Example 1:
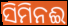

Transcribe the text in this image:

ସିମିନଈ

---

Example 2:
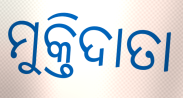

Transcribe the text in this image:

ମୁକ୍ତିଦାତା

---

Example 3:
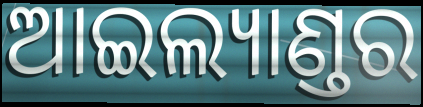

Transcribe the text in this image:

ଆଇଲ୍ୟାଣ୍ଡର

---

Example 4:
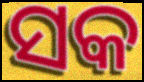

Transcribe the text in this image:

ସକ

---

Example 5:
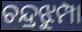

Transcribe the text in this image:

ଚନ୍ଦ୍ରଝୁମ୍ପା